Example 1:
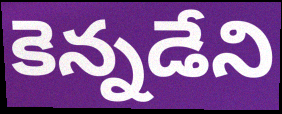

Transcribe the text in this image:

కెన్నడేని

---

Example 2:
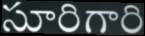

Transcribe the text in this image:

సూరిగారి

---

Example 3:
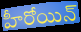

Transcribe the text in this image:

హీరోయిన్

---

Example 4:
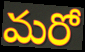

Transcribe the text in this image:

మరో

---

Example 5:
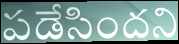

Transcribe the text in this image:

పడేసిందని